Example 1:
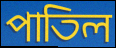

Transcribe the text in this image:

পাতিল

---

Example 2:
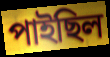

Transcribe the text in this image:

পাইছিল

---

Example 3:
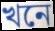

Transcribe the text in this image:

খনে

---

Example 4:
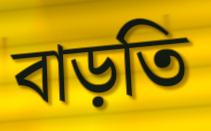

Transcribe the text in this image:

বাড়তি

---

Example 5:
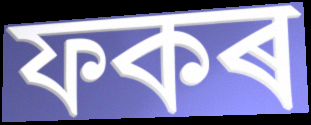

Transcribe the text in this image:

ফকৰ